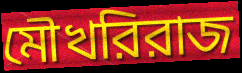
মৌখরিরাজ